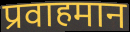
प्रवाहमान